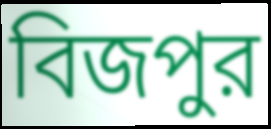
বিজপুর